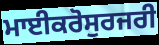
ਮਾਈਕਰੋਸੁਰਜਰੀ